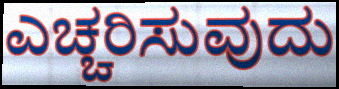
ಎಚ್ಚರಿಸುವುದು